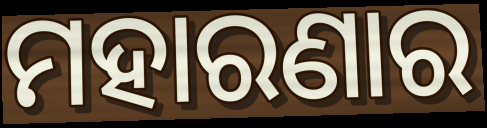
ମହାରଣାର